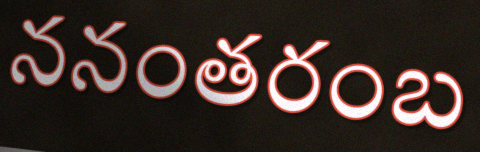
ననంతరంబ